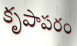
కృపాపరం